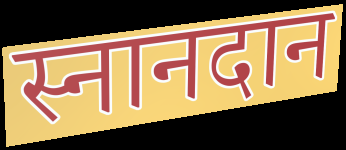
स्नानदान